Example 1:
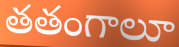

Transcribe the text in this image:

తతంగాలూ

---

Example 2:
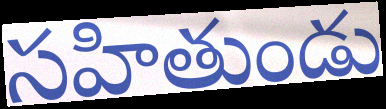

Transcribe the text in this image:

సహితుండు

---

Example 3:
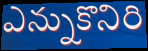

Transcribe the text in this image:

ఎన్నుకొనిరి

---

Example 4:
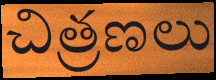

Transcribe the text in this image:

చిత్రణలు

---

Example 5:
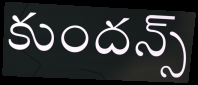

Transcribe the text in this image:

కుందన్స్